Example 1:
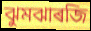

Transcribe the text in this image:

ঝুমঝাৰজি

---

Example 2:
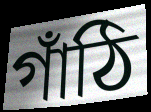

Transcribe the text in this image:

গাঁঠি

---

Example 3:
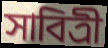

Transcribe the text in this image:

সাবিত্ৰী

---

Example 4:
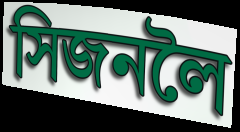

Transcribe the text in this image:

সিজনলৈ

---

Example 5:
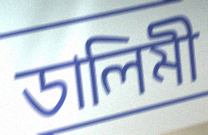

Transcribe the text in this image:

ডালিমী